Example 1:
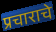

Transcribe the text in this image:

प्रचाराचे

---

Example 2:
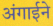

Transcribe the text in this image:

अंगाईने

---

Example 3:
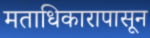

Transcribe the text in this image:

मताधिकारापासून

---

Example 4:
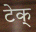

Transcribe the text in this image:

टेक्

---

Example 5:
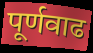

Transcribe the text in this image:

पूर्णवाढ